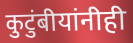
कुटुंबीयांनीही